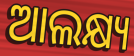
ଆଲକ୍ଷ୍ୟ